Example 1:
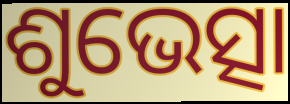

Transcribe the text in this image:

ଶୁଭେତ୍ସା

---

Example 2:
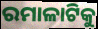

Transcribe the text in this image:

ରମାଳାଟିକୁ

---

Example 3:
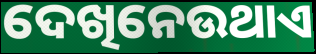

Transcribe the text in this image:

ଦେଖିନେଉଥାଏ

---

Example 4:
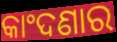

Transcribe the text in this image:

କାଂଦଣାର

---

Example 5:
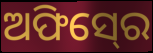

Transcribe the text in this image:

ଅଫିସ୍‍ରେ